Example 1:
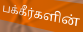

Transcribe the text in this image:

பக்கீர்களின்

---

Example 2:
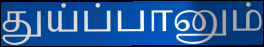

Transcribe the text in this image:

துய்ப்பானும்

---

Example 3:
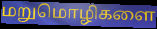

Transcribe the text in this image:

மறுமொழிகளை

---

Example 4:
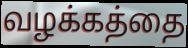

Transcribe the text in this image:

வழக்கத்தை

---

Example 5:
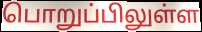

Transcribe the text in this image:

பொறுப்பிலுள்ள